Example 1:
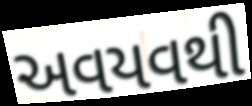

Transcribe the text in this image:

અવયવથી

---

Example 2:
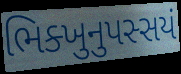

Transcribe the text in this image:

ભિક્ખુનુપસ્સયં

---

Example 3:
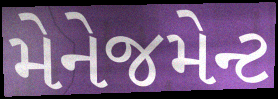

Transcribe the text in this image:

મેનેજમેન્ટ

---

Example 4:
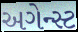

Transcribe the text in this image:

અગેન્સ્ટ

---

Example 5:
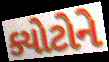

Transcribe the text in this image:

ક્યોટોને